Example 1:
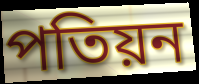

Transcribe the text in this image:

পতিয়ন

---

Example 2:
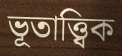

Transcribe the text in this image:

ভূতাত্ত্বিক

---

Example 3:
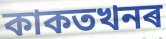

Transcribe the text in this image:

কাকতখনৰ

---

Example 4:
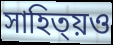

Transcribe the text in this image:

সাহিত্য়ও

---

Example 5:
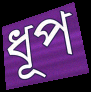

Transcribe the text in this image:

ধূপ